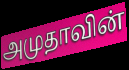
அமுதாவின்